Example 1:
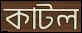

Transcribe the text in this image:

কাটল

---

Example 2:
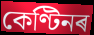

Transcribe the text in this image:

কেণ্টিনৰ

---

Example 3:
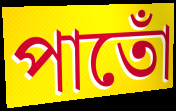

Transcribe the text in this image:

পাতোঁ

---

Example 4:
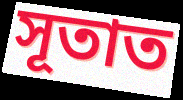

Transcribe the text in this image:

সূতাত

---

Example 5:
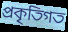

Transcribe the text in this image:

প্ৰকৃতিগত